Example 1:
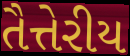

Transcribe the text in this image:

તૈત્તેરીય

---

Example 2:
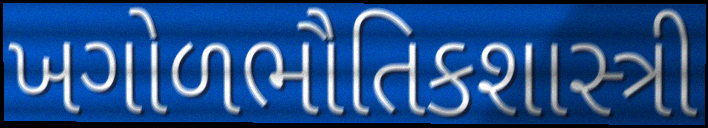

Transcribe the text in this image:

ખગોળભૌતિકશાસ્ત્રી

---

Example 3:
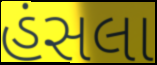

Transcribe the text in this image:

હંસલા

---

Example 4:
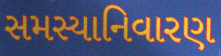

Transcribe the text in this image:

સમસ્યાનિવારણ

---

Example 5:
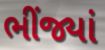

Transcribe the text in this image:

ભીંજ્યાં